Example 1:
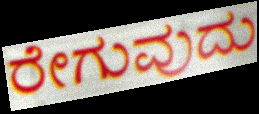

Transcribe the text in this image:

ರೇಗುವುದು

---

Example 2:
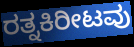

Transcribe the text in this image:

ರತ್ನಕಿರೀಟವು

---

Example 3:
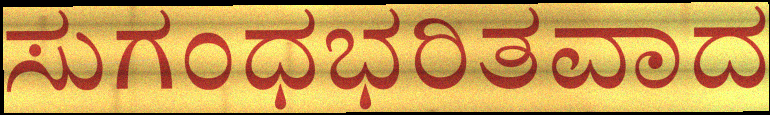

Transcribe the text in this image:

ಸುಗಂಧಭರಿತವಾದ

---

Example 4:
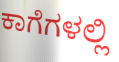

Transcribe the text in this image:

ಕಾಗೆಗಳಲ್ಲಿ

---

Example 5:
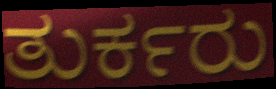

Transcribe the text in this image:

ತುರ್ಕರು